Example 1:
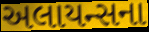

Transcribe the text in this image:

અલાયન્સના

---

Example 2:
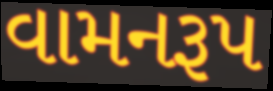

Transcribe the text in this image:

વામનરૂપ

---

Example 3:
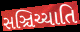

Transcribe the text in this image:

સઞ્ચિચ્ચાતિ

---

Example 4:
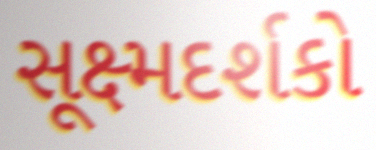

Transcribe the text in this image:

સૂક્ષ્મદર્શકો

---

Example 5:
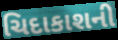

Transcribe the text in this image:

ચિદાકાશની